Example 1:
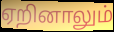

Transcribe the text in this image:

ஏறினாலும்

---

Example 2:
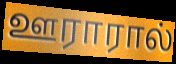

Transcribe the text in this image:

ஊராரால்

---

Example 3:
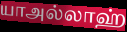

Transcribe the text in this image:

யாஅல்லாஹ்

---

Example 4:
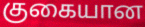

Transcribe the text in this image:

குகையான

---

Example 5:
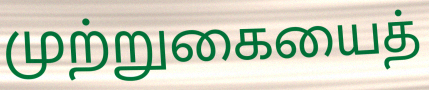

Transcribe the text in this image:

முற்றுகையைத்